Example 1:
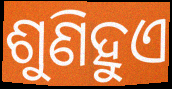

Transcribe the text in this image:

ଶୁଣିହୁଏ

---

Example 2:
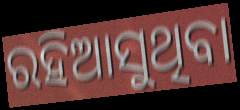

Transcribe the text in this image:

ରହିଆସୁଥିବା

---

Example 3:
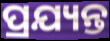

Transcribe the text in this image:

ପ୍ରଯ୍ୟନ୍ତ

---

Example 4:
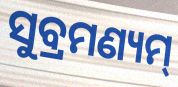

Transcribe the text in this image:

ସୁବ୍ରମଣ୍ୟମ୍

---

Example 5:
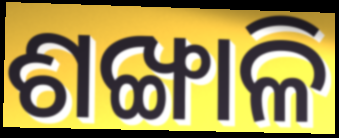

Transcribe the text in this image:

ଶଙ୍ଖାଳି